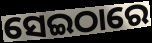
ସେଇଠାରେ